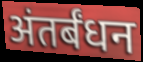
अंतर्बंधन